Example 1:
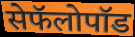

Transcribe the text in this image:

सेफॅलोपॉड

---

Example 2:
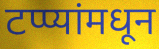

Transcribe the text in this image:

टप्प्यांमधून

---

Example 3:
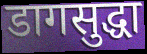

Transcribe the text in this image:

डागसुद्धा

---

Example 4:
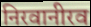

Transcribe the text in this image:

निरवानीरव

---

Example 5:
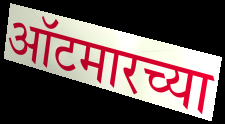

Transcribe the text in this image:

ऑटमारच्या